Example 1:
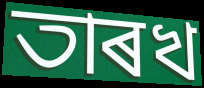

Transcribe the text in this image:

তাৰখ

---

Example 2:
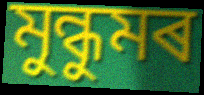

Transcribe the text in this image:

মুন্ধুমৰ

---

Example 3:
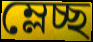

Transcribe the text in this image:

ম্লেচ্ছ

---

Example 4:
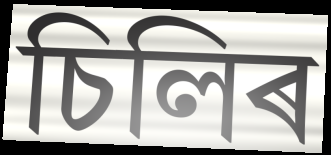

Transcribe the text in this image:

চিলিৰ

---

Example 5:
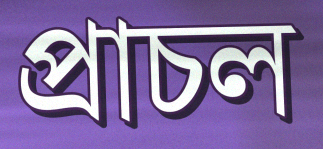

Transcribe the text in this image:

প্ৰাচল